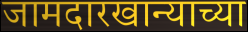
जामदारखान्याच्या